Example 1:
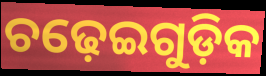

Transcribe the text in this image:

ଚଢ଼େଇଗୁଡ଼ିକ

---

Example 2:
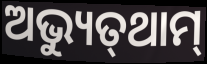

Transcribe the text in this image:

ଅଭ୍ୟୁତ୍‌ଥାମ୍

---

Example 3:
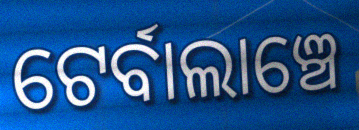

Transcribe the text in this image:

ଟେର୍ବାଲାଞ୍ଚେ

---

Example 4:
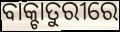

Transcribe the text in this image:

ବାକ୍ଚାତୁରୀରେ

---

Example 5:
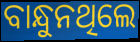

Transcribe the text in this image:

ବାନ୍ଧୁନଥିଲେ